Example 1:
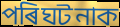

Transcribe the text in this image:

পৰিঘটনাক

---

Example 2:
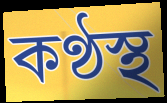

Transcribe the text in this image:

কণ্ঠস্থ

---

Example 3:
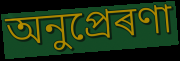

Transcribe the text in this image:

অনুপ্ৰেৰণা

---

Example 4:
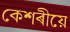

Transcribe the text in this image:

কেশৰীয়ে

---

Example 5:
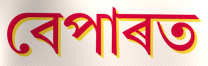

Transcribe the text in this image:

বেপাৰত